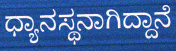
ಧ್ಯಾನಸ್ಥನಾಗಿದ್ದಾನೆ